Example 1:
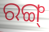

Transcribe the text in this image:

ରଙ୍ଗ୍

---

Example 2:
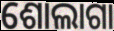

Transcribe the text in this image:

ଶୋଲାଗା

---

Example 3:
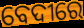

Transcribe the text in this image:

ବେଦୀରେ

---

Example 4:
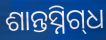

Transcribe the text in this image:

ଶାନ୍ତସ୍ନିଗ୍‌ଧ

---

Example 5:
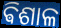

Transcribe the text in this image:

ଵିଶାଳ